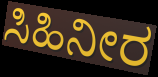
ಸಿಹಿನೀರ